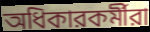
অধিকারকর্মীরা